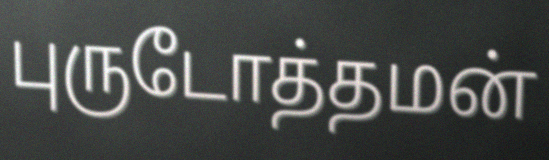
புருடோத்தமன்